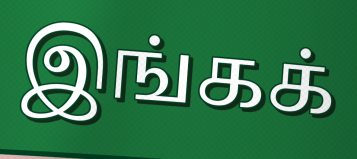
இங்கக்